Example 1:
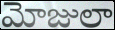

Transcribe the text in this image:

మోజులా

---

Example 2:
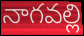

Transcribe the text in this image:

నాగవల్లి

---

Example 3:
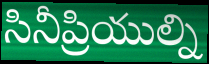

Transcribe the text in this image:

సినీప్రియుల్ని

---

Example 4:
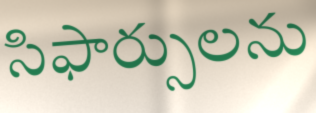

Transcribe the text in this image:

సిఫార్సులను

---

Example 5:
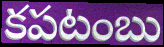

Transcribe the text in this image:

కపటంబు